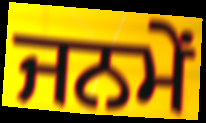
ਜਨਮੇਂ